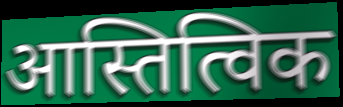
आस्तित्विक